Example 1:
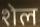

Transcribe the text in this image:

शेल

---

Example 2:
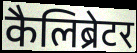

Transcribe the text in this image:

कैलिब्रेटर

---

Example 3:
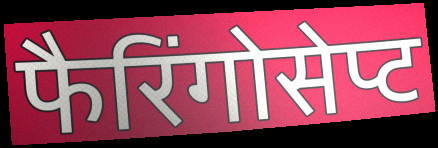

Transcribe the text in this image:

फैरिंगोसेप्ट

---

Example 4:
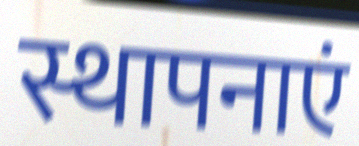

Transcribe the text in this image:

स्थापनाएं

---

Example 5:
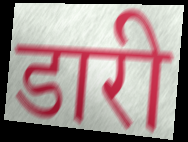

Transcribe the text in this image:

डारी